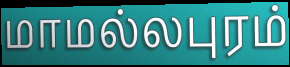
மாமல்லபுரம்